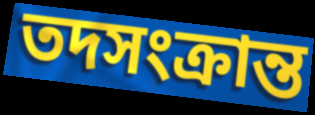
তদসংক্রান্ত